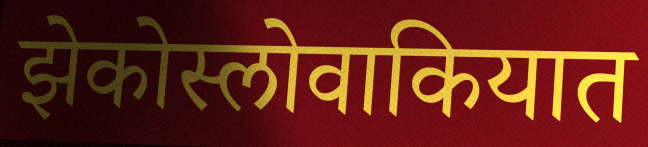
झेकोस्लोवाकियात